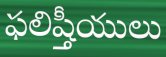
ఫలిష్తీయులు